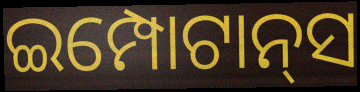
ଇମ୍ପୋଟାନ୍‌ସ